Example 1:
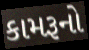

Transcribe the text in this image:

કામરૂનો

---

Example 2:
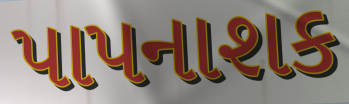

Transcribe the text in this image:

પાપનાશક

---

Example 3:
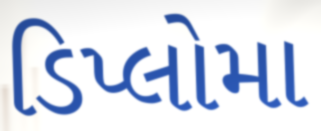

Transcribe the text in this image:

ડિપ્લોમા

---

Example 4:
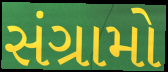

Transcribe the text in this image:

સંગ્રામો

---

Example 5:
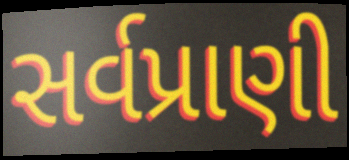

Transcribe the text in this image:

સર્વપ્રાણી